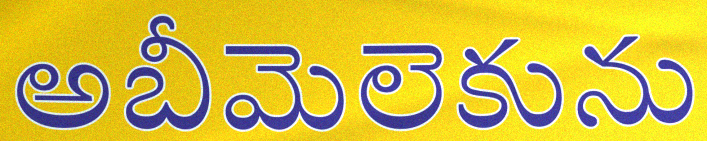
అబీమెలెకును